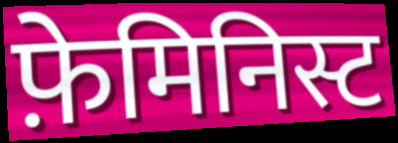
फ़ेमिनिस्ट